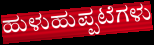
ಹುಳುಹುಪ್ಪಟೆಗಳು